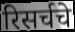
रिसर्चचे